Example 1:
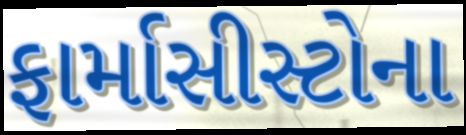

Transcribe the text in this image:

ફાર્માસીસ્ટોના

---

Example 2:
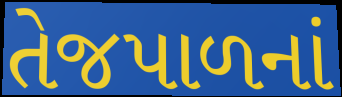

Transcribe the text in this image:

તેજપાળનાં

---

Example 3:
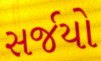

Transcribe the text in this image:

સર્જયો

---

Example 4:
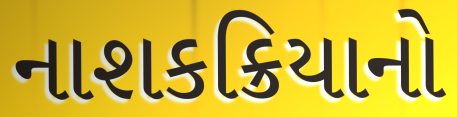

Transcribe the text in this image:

નાશકક્રિયાનો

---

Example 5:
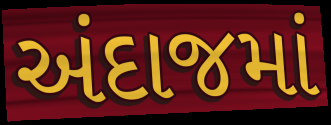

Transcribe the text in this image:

અંદાજમાં